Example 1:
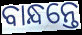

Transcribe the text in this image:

ବାନ୍ଧନ୍ତେ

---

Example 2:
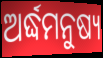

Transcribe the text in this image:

ଅର୍ଦ୍ଧମନୁଷ୍ୟ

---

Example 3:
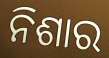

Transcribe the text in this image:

ନିଶାର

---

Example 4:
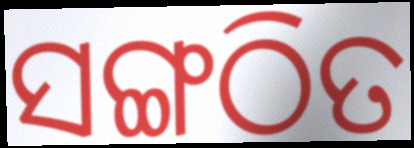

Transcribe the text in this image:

ସଙ୍ଗଠିତ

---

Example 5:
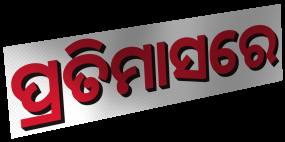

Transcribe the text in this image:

ପ୍ରତିମାସରେ